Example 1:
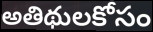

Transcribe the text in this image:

అతిథులకోసం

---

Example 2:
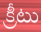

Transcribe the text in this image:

క్రీటు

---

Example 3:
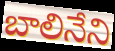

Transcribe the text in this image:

బాలినేని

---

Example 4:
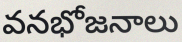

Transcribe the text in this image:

వనభోజనాలు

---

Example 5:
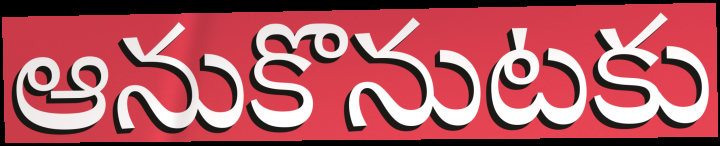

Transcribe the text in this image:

ఆనుకొనుటకు